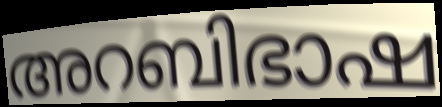
അറബിഭാഷ